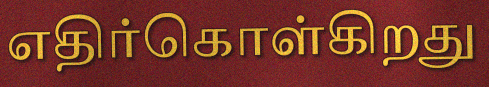
எதிர்கொள்கிறது